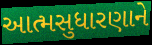
આત્મસુધારણાને